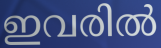
ഇവരിൽ